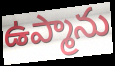
ఉప్మాను